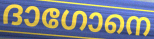
ദാഗോനെ